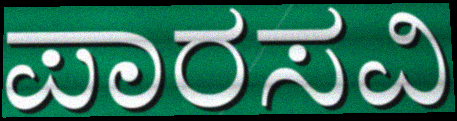
ಪಾರಸವಿ